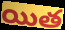
యిత